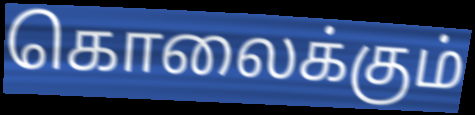
கொலைக்கும்